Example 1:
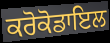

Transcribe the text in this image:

ਕਰੋਕੋਡਾਇਲ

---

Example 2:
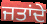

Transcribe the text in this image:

ਜਤਾਂਦੇ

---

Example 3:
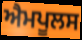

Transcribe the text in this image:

ਐਮਪੂਲਸ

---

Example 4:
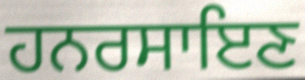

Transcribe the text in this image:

ਹਨਰਸਾਇਣ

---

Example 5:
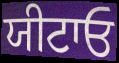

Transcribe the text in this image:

ਯੀਟਾਓ